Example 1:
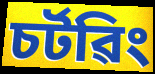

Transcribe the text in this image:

চৰ্টৱিং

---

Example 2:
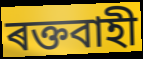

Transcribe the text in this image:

ৰক্তবাহী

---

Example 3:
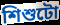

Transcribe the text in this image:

শিশুটো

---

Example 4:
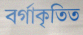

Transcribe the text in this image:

বৰ্গাকৃতিত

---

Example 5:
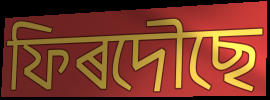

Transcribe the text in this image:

ফিৰদৌছে